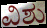
ವಿಶು